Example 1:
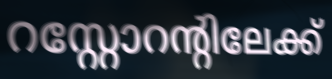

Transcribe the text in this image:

റസ്റ്റോറന്റിലേക്ക്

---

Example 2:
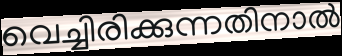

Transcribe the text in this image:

വെച്ചിരിക്കുന്നതിനാൽ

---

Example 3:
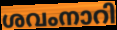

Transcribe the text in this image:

ശവംനാറി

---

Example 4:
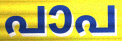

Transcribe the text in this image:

പാപ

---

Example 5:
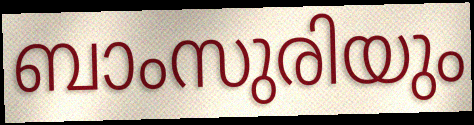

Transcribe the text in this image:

ബാംസുരിയും